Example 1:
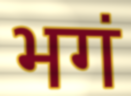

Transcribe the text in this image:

भगं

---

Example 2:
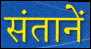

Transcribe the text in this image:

संतानें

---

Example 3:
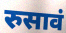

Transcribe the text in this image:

रुसावं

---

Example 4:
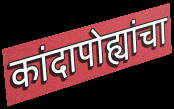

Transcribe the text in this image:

कांदापोह्यांचा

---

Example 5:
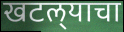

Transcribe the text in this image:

खटल्याचा